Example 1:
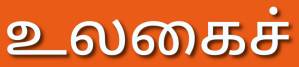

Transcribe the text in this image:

உலகைச்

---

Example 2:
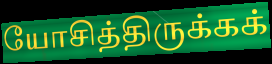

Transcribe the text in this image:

யோசித்திருக்கக்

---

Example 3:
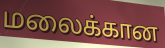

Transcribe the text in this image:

மலைக்கான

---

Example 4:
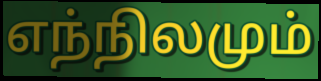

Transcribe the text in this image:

எந்நிலமும்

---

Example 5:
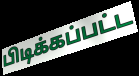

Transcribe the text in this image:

பிடிக்கப்பட்ட